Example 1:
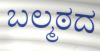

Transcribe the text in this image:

ಬಲ್ಮಠದ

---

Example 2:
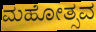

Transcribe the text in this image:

ಮಹೋತ್ಸವ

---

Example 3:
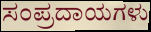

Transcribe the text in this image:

ಸಂಪ್ರದಾಯಗಳು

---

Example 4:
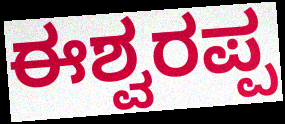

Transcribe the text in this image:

ಈಶ್ವರಪ್ಪ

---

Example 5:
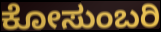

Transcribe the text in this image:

ಕೋಸುಂಬರಿ